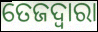
ତେଜଦ୍ୱାରା